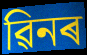
ৱিনৰ